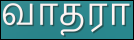
வாதரா